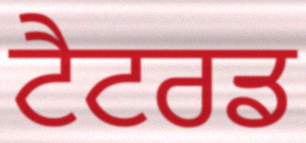
ਟੈਟਰਡ